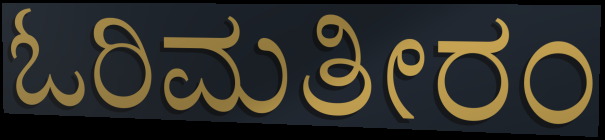
ಓರಿಮತೀರಂ